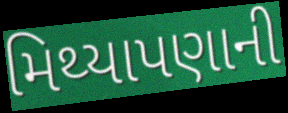
મિથ્યાપણાની